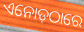
ଏନୋଡ଼ଠାରେ